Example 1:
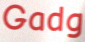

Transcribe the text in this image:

Gadg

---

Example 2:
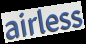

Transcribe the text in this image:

airless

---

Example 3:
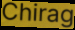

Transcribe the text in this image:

Chirag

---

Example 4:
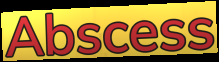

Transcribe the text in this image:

Abscess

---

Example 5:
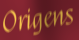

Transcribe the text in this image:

Origens